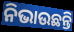
ନିଭାଉଛନ୍ତି